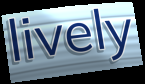
lively